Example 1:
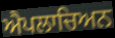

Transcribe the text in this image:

ਐਪਲਾਚਿਅਨ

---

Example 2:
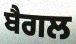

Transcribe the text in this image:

ਬੈਗਲ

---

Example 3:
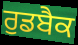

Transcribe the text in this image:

ਰੁਡਬੈਕ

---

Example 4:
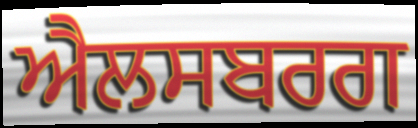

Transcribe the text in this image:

ਐਲਸਬਰਗ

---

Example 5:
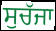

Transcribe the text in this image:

ਸੁਚੱਜਾ